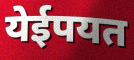
येईपयत